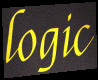
logic